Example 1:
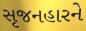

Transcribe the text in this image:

સૃજનહારને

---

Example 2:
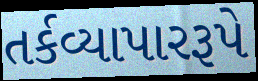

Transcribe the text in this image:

તર્કવ્યાપારરૂપે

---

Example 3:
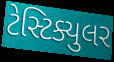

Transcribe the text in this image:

ટેસ્ટિક્યુલર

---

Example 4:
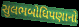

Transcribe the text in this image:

સુલભબોધિપણાનો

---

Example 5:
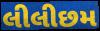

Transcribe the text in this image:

લીલીછમ